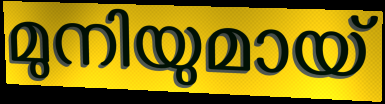
മുനിയുമായ്